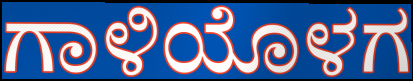
ಗಾಳಿಯೊಳಗ